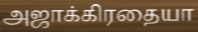
அஜாக்கிரதையா